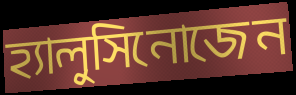
হ্যালুসিনোজেন